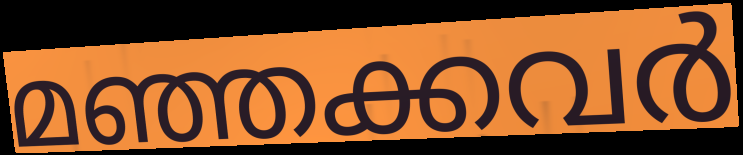
മഞ്ഞക്കവർ